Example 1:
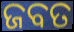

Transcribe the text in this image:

ଜବତ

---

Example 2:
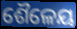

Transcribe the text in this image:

ଶୈଳେୟ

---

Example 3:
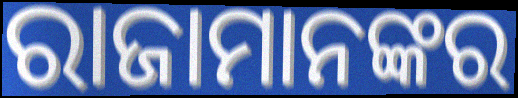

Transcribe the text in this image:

ରାଜାମାନଙ୍କର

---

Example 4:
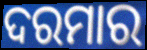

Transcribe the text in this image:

ଦରମାର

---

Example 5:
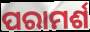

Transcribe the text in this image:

ପରାମର୍ଶ